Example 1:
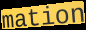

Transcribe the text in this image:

mation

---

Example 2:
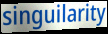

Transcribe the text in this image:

singuilarity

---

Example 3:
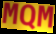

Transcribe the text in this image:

MQM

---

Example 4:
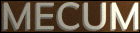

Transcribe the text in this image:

MECUM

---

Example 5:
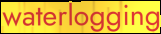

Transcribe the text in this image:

waterlogging